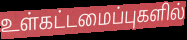
உள்கட்டமைப்புகளில்